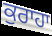
ਕੁਰਾਹਾ